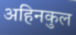
अहिनकुल